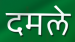
दमले